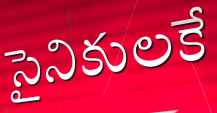
సైనికులకే